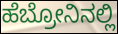
ಹೆಬ್ರೋನಿನಲ್ಲಿ